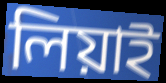
লিয়াই